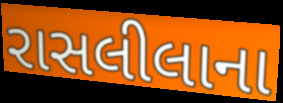
રાસલીલાના